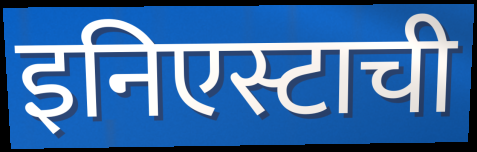
इनिएस्टाची